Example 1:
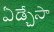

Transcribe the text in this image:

ఏడ్చేసా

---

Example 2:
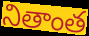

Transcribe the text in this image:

నితాంత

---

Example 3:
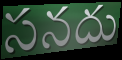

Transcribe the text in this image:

సనదు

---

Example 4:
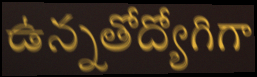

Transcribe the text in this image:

ఉన్నతోద్యోగిగా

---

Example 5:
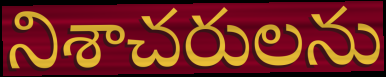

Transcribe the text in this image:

నిశాచరులను